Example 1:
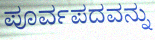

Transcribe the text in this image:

ಪೂರ್ವಪದವನ್ನು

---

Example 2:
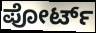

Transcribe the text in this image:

ಪೋರ್ಟ್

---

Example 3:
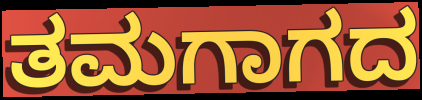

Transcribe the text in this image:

ತಮಗಾಗದ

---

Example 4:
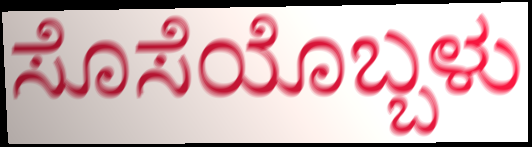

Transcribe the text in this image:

ಸೊಸೆಯೊಬ್ಬಳು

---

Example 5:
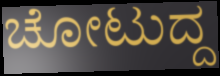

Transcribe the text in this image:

ಚೋಟುದ್ದ